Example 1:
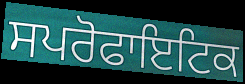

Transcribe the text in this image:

ਸਪਰੋਫਾਇਟਿਕ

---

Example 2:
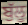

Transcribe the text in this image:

ਬੁੱਲੂ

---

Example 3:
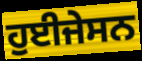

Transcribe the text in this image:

ਹੁਈਜੇਸਨ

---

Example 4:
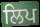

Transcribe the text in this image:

ਲਿਪ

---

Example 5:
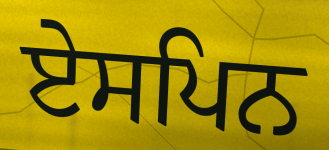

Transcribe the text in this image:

ਏਸਪਿਨ